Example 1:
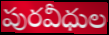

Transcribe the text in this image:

పురవీధుల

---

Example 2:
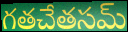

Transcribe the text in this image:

గతచేతసమ్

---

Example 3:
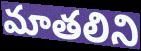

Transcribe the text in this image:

మాతలిని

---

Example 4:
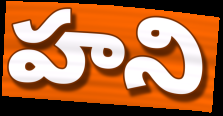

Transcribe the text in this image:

హని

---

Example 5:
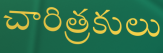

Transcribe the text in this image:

చారిత్రకులు